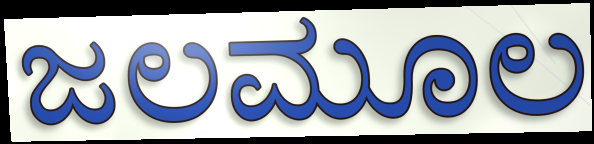
ಜಲಮೂಲ